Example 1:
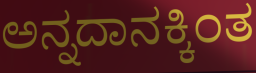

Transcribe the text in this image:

ಅನ್ನದಾನಕ್ಕಿಂತ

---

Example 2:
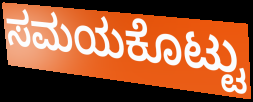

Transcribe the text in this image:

ಸಮಯಕೊಟ್ಟು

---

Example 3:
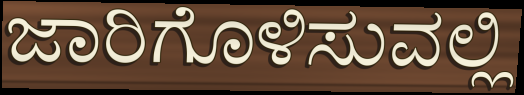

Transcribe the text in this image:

ಜಾರಿಗೊಳಿಸುವಲ್ಲಿ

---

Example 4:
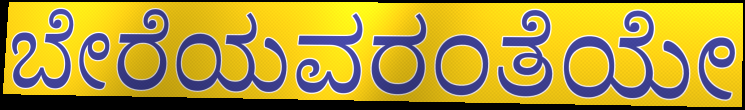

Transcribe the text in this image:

ಬೇರೆಯವರಂತೆಯೇ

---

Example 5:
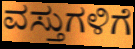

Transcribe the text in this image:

ವಸ್ತುಗಳಿಗೆ